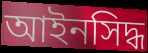
আইনসিদ্ধ